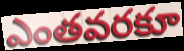
ఎంతవరకూ